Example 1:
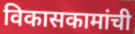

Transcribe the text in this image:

विकासकामांची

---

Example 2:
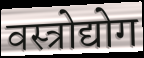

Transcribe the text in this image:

वस्त्रोद्योग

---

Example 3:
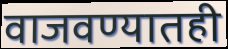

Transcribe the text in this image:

वाजवण्यातही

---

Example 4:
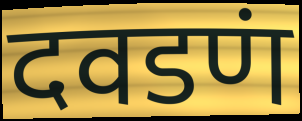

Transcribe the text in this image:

दवडणं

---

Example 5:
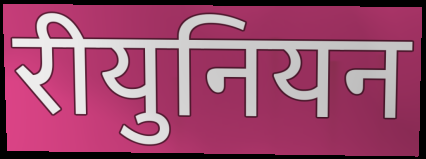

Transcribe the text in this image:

रीयुनियन